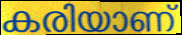
കരിയാണ്